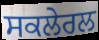
ਸਕਲੇਰਲ